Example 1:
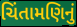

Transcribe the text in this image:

ચિંતામણિનું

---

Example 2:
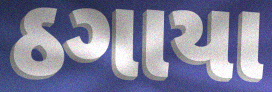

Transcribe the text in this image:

ઠગાયા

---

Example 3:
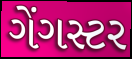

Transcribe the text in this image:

ગેંગસ્ટર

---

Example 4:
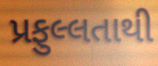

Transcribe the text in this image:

પ્રફુલ્લતાથી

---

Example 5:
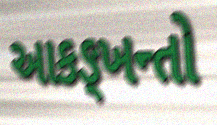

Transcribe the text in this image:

આકઙ્ખન્તો